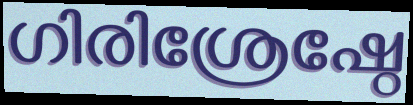
ഗിരിശ്രേഷ്ഠേ